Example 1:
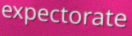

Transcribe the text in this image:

expectorate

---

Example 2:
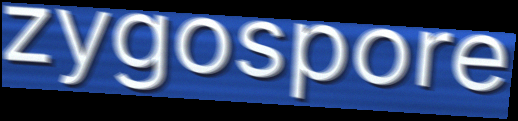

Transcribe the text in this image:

zygospore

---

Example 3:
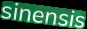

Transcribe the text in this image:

sinensis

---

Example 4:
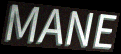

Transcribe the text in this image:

MANE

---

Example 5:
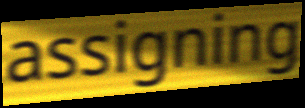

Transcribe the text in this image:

assigning